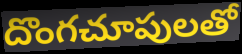
దొంగచూపులతో